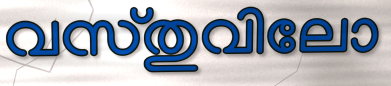
വസ്തുവിലോ